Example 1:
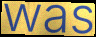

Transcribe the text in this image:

was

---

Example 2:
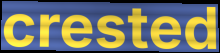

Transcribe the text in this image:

crested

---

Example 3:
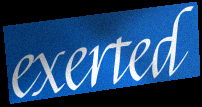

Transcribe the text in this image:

exerted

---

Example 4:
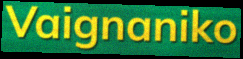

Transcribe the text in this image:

Vaignaniko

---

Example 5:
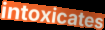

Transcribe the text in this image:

intoxicates